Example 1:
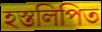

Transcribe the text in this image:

হস্তলিপিত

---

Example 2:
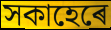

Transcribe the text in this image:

সকাহেৰে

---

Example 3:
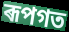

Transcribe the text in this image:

ৰূপগত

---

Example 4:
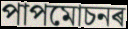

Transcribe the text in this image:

পাপমোচনৰ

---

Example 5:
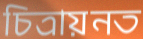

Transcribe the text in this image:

চিত্ৰায়নত